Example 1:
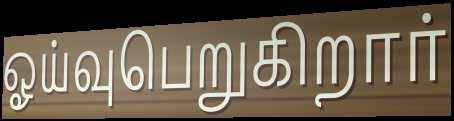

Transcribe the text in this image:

ஓய்வுபெறுகிறார்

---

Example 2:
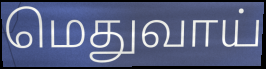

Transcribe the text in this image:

மெதுவாய்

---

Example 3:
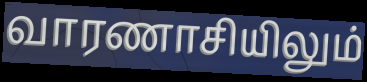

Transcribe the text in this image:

வாரணாசியிலும்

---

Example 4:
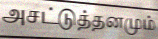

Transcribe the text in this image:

அசட்டுத்தனமும்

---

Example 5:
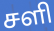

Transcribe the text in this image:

சளி